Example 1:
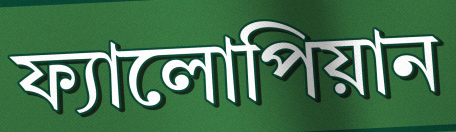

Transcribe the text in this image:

ফ্যালোপিয়ান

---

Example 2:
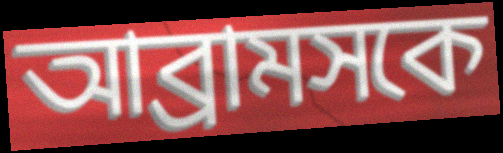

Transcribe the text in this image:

আব্রামসকে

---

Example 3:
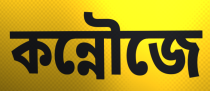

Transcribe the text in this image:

কন্নৌজে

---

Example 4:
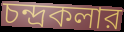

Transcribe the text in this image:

চন্দ্রকলার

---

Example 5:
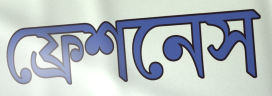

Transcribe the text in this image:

ফ্রেশনেস